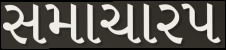
સમાચારપ